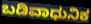
ಬಡಿವಾಧುನಿಕ